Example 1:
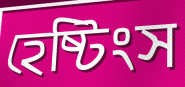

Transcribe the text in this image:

হেষ্টিংস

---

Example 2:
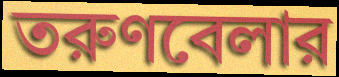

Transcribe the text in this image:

তরুণবেলার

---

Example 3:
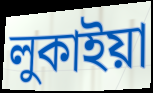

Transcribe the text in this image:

লুকাইয়া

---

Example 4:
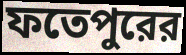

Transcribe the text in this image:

ফতেপুরের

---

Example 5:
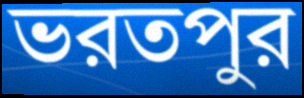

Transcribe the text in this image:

ভরতপুর